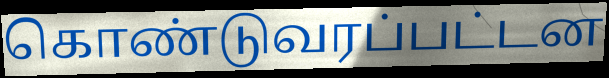
கொண்டுவரப்பட்டன